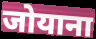
जोयाना